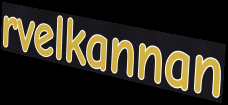
rvelkannan